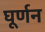
घूर्णन